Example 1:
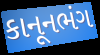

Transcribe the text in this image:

કાનૂનભંગ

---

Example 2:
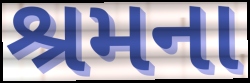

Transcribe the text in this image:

શ્રમના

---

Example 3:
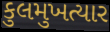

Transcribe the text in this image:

કુલમુખત્યાર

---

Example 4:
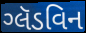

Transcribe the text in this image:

ગ્લૅડવિન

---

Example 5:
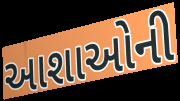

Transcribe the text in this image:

આશાઓની